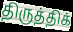
திருத்திக்